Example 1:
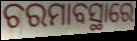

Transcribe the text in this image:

ଚରମାବସ୍ଥାରେ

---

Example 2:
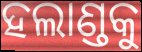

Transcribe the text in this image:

ହଲାଣ୍ଡକୁ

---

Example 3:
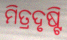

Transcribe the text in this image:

ମିତ୍ରଦୃଷ୍ଟି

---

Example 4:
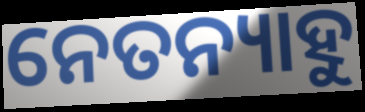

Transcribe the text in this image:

ନେତନ୍ୟାହୁ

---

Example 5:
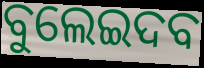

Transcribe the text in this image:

ବୁଲେଇଦବ